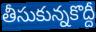
తీసుకున్నకొద్దీ